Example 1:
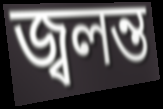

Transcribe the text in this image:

জ্বলন্ত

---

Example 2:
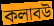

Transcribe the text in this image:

কলাবউ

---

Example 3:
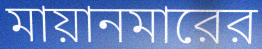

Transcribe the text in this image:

মায়ানমারের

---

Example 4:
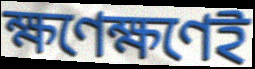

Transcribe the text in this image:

ক্ষণেক্ষণেই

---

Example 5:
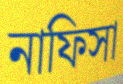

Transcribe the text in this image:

নাফিসা